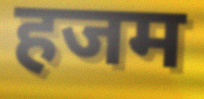
हजम